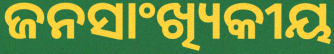
ଜନସାଂଖ୍ୟିକୀୟ